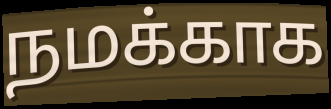
நமக்காக